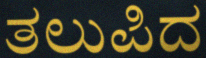
ತಲುಪಿದ